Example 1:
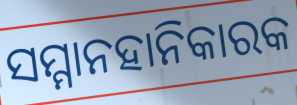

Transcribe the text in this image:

ସମ୍ମାନହାନିକାରକ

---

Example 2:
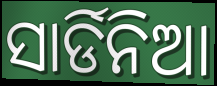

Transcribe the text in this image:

ସାର୍ଡିନିଆ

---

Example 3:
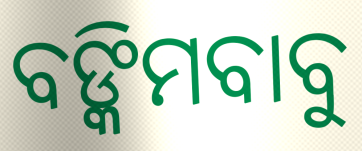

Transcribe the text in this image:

ବଙ୍କିମବାବୁ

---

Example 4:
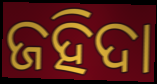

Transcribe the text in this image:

ଜହିଦା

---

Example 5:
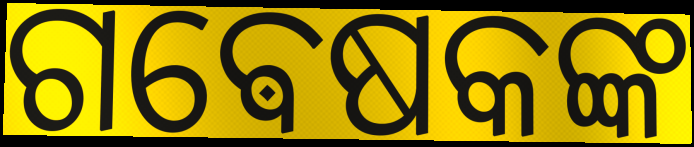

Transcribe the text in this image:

ଗଵେଷକଙ୍କ